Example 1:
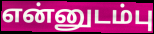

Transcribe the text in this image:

என்னுடம்பு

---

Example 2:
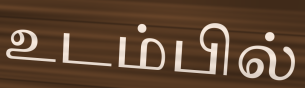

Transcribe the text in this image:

உடம்பில்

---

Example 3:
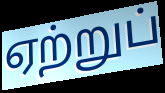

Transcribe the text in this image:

ஏற்றுப்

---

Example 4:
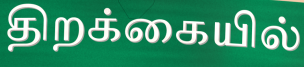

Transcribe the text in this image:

திறக்கையில்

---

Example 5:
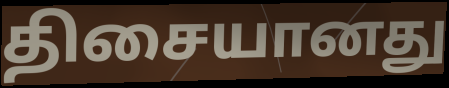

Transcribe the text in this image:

திசையானது